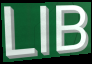
LIB